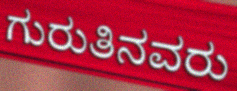
ಗುರುತಿನವರು